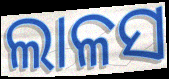
ଲାଳସ